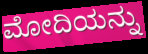
ಮೋದಿಯನ್ನು